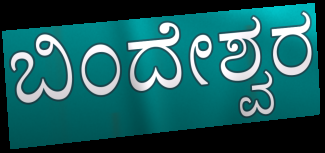
ಬಿಂದೇಶ್ವರ